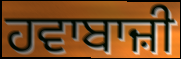
ਹਵਾਬਾਜ਼ੀ